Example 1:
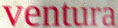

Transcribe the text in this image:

ventura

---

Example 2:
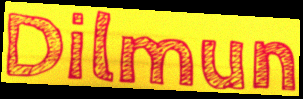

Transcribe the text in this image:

Dilmun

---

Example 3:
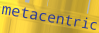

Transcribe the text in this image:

metacentric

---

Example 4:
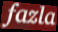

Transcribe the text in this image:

fazla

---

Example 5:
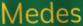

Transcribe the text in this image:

Medes